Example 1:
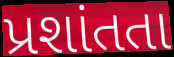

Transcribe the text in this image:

પ્રશાંતતા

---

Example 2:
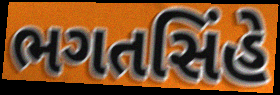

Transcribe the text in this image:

ભગતસિંહે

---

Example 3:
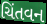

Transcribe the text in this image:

ચિંતવન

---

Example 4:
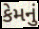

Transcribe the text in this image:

કેમનું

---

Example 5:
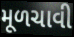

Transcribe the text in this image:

મૂળચાવી